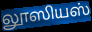
லூஸியஸ்